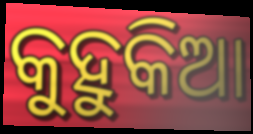
କୁହୁକିଆ